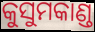
କୁସୁମକାଣ୍ଡ